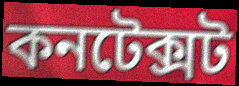
কনটেক্সট